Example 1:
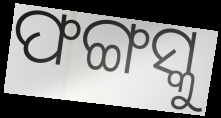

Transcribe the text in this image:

ଫଙ୍ଗସ୍କୁ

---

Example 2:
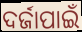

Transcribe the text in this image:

ଦର୍ଜାପାଇଁ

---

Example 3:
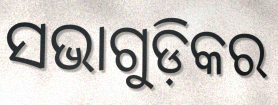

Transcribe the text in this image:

ସଭାଗୁଡ଼ିକର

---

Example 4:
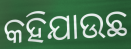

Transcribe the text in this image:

କହିଯାଉଛ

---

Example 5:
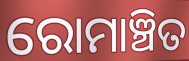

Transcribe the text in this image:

ରୋମାଞ୍ଚିତ